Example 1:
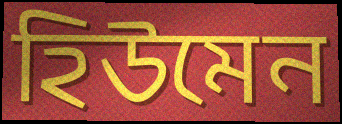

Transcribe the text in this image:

হিউমেন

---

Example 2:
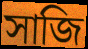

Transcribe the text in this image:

সাজি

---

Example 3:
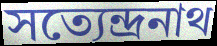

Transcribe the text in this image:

সত্যেন্দ্ৰনাথ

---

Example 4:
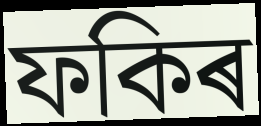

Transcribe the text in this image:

ফকিৰ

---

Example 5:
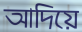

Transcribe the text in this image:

আদিয়ে